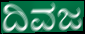
ದಿವಜ